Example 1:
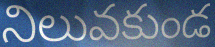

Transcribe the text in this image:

నిలువకుండ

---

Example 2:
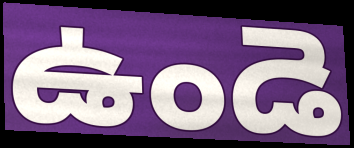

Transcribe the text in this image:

ఉండె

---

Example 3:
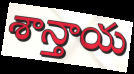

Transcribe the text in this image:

శాన్తాయ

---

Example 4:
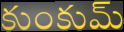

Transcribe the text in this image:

కుంకుమ్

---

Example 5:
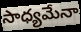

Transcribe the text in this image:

సాధ్యమేనా